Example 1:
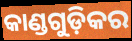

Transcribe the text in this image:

କାଣ୍ଡଗୁଡ଼ିକର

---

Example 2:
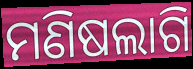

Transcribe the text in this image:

ମଣିଷଲାଗି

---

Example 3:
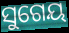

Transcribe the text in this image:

ସୁଗେୟ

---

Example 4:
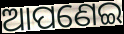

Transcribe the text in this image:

ଆପଣେଇ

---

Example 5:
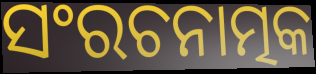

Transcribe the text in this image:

ସଂରଚନାତ୍ମକ